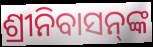
ଶ୍ରୀନିବାସନ୍‌ଙ୍କ